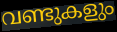
വണ്ടുകളും